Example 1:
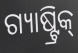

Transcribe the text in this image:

ଗ୍ୟାଷ୍ଟ୍ରିକ୍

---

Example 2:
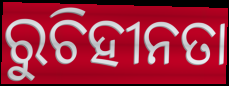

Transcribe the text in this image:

ରୁଚିହୀନତା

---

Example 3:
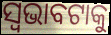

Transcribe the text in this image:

ସ୍ଵଭାବଟାକୁ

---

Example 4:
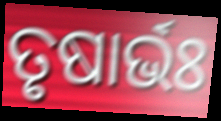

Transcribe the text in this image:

ତୃଷାର୍ଭଃ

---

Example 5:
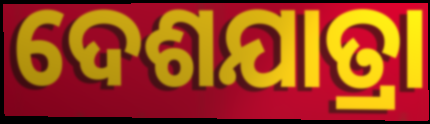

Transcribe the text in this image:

ଦେଶଯାତ୍ରା